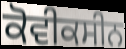
ਕੋਵੀਕਸੀਨ